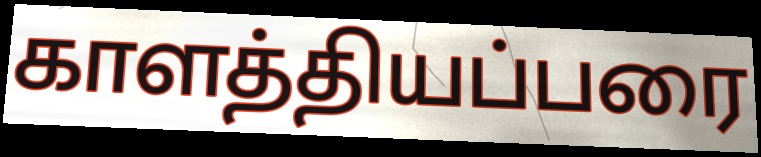
காளத்தியப்பரை